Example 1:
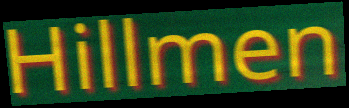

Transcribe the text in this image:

Hillmen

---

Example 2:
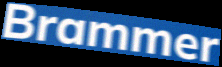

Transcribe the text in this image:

Brammer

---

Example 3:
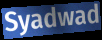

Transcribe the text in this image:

Syadwad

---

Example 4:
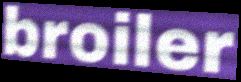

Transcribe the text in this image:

broiler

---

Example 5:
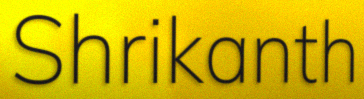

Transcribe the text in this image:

Shrikanth